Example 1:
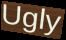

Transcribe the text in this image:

Ugly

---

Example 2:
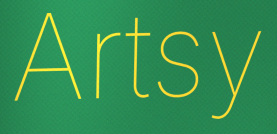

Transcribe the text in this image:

Artsy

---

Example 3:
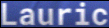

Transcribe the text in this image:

Lauric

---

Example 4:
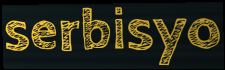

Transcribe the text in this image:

serbisyo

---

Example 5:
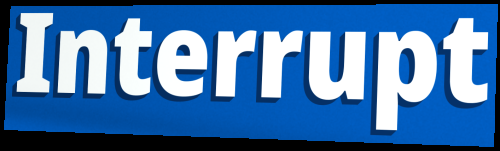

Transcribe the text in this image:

Interrupt